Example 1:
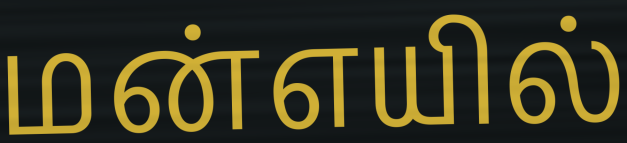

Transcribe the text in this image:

மன்எயில்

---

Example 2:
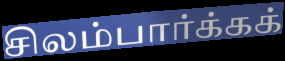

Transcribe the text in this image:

சிலம்பார்க்கக்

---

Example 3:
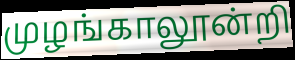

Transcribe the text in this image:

முழங்காலூன்றி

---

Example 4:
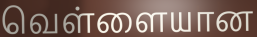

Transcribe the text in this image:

வெள்ளையான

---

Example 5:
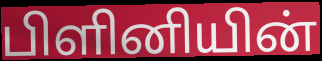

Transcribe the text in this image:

பிளினியின்